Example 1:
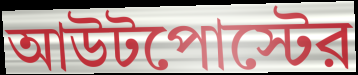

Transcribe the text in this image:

আউটপোস্টের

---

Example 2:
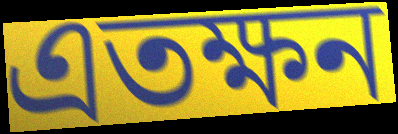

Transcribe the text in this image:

এতক্ষন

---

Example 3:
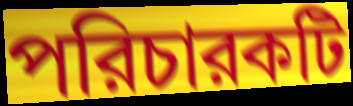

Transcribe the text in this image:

পরিচারকটি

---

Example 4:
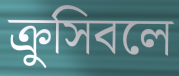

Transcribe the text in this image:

ক্রুসিবলে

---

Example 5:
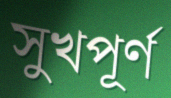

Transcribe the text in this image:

সুখপূর্ণ